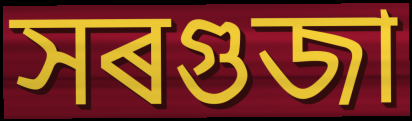
সৰগুজা